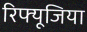
रिफ्यूजिया